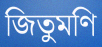
জিতুমণি